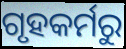
ଗୃହକର୍ମରୁ